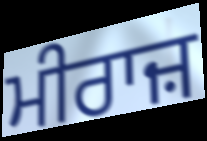
ਮੀਰਾਜ਼